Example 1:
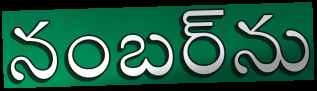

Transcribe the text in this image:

నంబర్‌ను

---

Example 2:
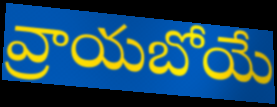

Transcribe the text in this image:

వ్రాయబోయే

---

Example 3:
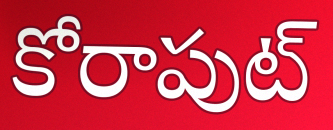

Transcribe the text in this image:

కోరాపుట్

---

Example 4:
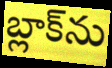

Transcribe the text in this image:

బ్లాక్‌ను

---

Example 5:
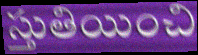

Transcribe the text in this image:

స్తుతియించి